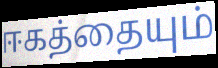
ஈகத்தையும்